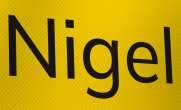
Nigel